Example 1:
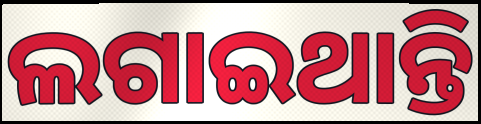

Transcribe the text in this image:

ଲଗାଇଥାନ୍ତି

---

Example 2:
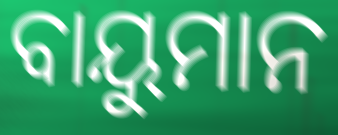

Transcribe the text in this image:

ବାୟୁମାନ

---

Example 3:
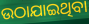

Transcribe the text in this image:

ଉଠାଯାଇଥିବା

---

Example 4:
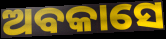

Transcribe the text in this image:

ଅବକାସେ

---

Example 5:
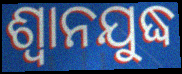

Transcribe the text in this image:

ଶ୍ଵାନଯୁଦ୍ଧ